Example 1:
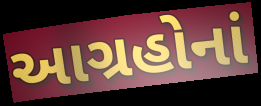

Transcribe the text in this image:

આગ્રહોનાં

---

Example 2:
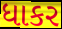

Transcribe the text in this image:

ધાકર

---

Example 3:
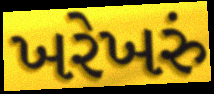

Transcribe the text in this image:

ખરેખરું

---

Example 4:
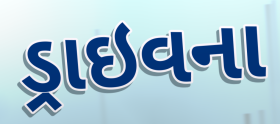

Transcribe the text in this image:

ડ્રાઇવના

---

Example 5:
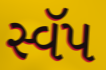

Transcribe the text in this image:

સ્વૅપ